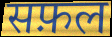
सफ़ल